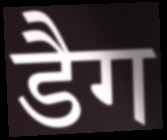
डैग